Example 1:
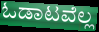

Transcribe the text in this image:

ಓಡಾಟವೆಲ್ಲ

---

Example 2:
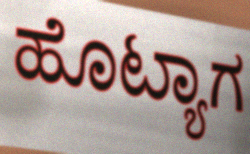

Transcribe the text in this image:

ಹೊಟ್ಯಾಗ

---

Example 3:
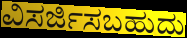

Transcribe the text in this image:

ವಿಸರ್ಜಿಸಬಹುದು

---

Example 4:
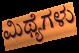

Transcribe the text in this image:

ಮಿಥ್ಯೆಗಳು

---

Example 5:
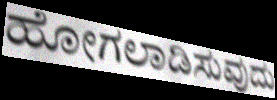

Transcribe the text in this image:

ಹೋಗಲಾಡಿಸುವುದು